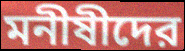
মনীষীদের